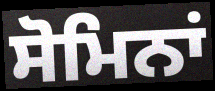
ਸੋਮਿਨਾਂ